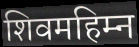
शिवमहिम्न